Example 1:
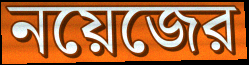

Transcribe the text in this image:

নয়েজের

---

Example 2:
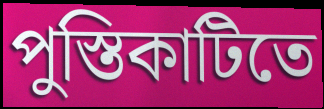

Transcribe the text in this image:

পুস্তিকাটিতে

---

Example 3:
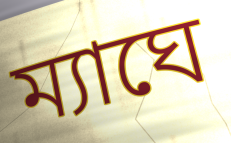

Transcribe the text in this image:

ম্যাঘে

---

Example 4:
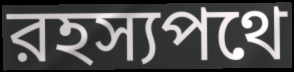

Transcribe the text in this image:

রহস্যপথে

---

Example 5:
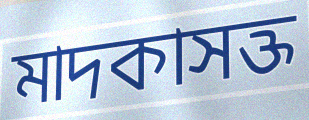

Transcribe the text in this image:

মাদকাসক্ত